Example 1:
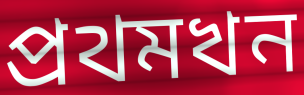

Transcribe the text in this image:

প্ৰথমখন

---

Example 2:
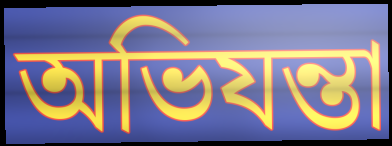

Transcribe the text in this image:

অভিযন্তা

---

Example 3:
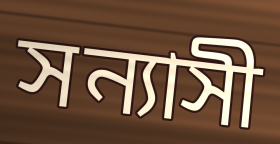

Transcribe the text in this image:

সন্যাসী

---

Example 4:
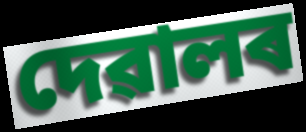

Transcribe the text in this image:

দেৱালৰ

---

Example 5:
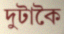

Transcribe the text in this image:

দুটাকৈ